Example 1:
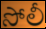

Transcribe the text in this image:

సోలీ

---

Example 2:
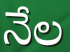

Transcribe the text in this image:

నేల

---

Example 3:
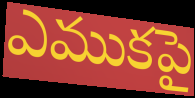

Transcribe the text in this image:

ఎముకపై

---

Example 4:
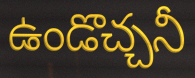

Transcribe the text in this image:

ఉండొచ్చనీ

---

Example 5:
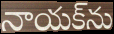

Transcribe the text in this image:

నాయక్‌ను